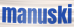
manuski